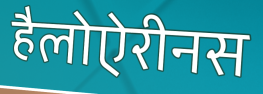
हैलोऐरीनस